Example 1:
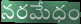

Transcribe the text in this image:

నరమేధం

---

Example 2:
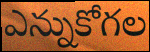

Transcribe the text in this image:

ఎన్నుకోగల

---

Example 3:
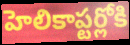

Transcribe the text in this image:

హెలికాప్టర్లోకి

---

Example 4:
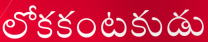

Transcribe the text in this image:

లోకకంటకుడు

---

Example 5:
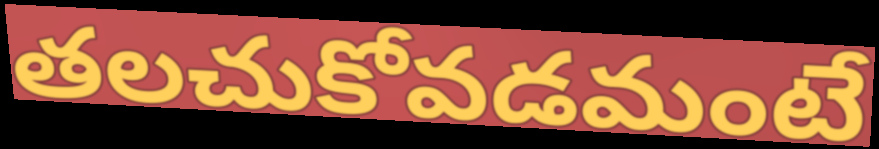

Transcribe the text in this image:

తలచుకోవడమంటే